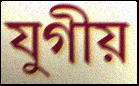
যুগীয়